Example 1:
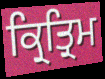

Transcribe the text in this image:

ਕ੍ਰਿਤ੍ਰਿਮ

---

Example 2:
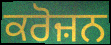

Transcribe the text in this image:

ਕਰੋਜ਼ਨ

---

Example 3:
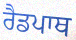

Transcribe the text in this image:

ਰੈਡਪਾਥ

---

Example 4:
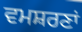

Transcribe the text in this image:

ਵਮਸ਼ਰਣਾਂ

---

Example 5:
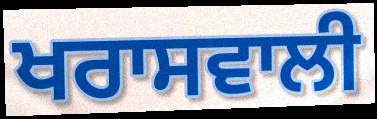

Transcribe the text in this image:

ਖਰਾਸਵਾਲੀ